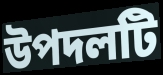
উপদলটি